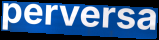
perversa